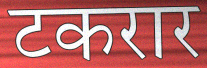
टकरार